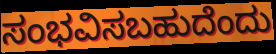
ಸಂಭವಿಸಬಹುದೆಂದು